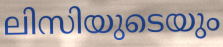
ലിസിയുടെയും